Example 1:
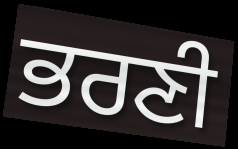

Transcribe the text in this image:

ਭਰਣੀ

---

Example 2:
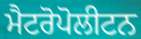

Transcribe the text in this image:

ਮੈਟਰੋਪੋਲੀਟਨ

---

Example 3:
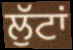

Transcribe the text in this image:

ਲੁੱਟਾਂ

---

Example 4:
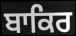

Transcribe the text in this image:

ਬਾਕਿਰ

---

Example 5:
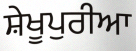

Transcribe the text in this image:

ਸ਼ੇਖੂਪੁਰੀਆ